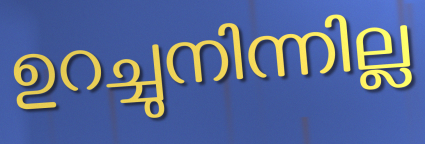
ഉറച്ചുനിന്നില്ല